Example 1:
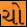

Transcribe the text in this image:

ચો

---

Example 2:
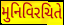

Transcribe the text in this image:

મુનિવિરચિતે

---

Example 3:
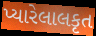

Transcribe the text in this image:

પ્યારેલાલકૃત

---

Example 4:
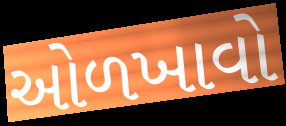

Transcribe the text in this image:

ઓળખાવો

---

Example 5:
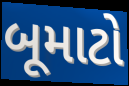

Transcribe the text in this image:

બૂમાટો